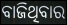
ବାଜିଥିବାର